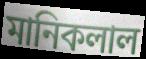
মানিকলাল